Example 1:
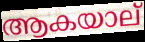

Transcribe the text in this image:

ആകയാല്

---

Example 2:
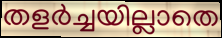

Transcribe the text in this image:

തളർച്ചയില്ലാതെ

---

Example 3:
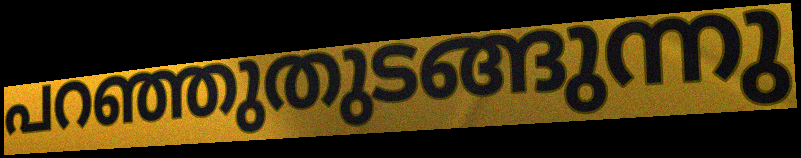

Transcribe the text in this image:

പറഞ്ഞുതുടങ്ങുന്നു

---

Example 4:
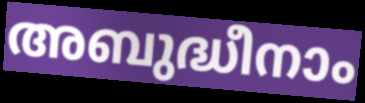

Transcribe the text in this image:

അബുദ്ധീനാം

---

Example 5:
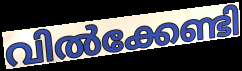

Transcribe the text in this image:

വിൽക്കേണ്ടി